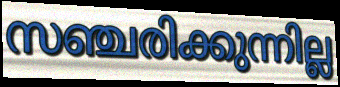
സഞ്ചരിക്കുന്നില്ല